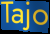
Tajo